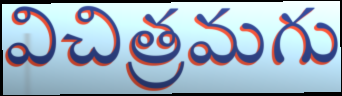
విచిత్రమగు